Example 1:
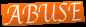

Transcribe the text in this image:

ABUSE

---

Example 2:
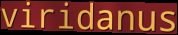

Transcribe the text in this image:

viridanus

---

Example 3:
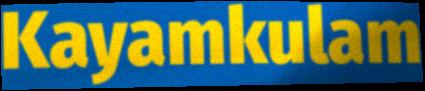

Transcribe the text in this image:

Kayamkulam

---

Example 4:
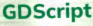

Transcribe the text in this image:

GDScript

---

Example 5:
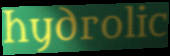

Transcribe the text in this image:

hydrolic